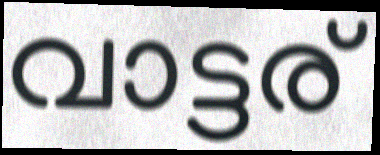
വാട്ടര്